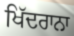
ਖਿੱਦਰਾਨਾ